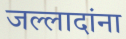
जल्लादांना